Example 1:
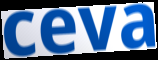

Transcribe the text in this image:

ceva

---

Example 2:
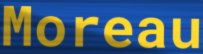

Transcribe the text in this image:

Moreau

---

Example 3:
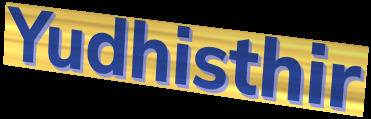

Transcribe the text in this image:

Yudhisthir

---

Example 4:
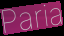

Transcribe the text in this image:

Paria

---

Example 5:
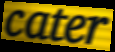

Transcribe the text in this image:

cater